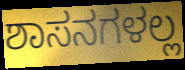
ಶಾಸನಗಳಲ್ಲ